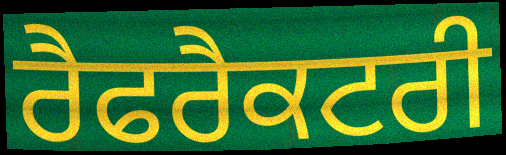
ਰੈਫਰੈਕਟਰੀ